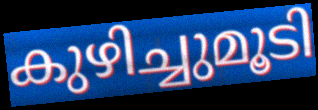
കുഴിച്ചുമൂടി